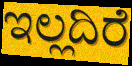
ಇಲ್ಲದಿರೆ